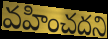
వహించదని